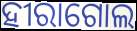
ହୀରାଗୋଲ